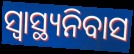
ସ୍ୱାସ୍ଥ୍ୟନିବାସ